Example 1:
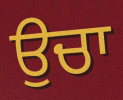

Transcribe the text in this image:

ਉਚਾ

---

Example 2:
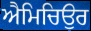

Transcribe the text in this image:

ਐਮਿਚਿਉਰ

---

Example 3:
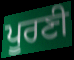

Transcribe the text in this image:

ਪੂਰਣੀ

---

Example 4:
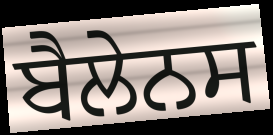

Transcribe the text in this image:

ਬੈਲੇਨਸ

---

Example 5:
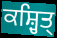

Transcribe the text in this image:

ਕਸ਼੍ਚਿਤ੍